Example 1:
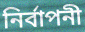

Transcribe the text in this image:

নির্বাপনী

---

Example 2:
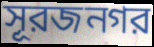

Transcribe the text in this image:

সূরজনগর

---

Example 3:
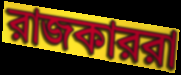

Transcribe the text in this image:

রাজকাররা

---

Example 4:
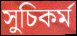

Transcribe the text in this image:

সুচিকর্ম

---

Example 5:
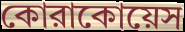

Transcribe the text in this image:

কোরাকোয়েস